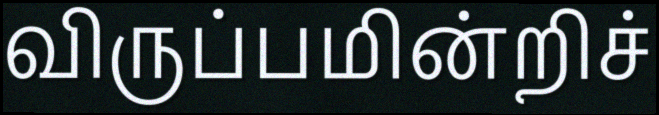
விருப்பமின்றிச்